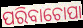
ପରିବାଚୋପା